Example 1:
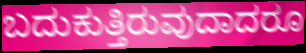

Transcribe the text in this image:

ಬದುಕುತ್ತಿರುವುದಾದರೂ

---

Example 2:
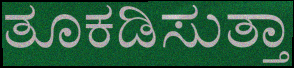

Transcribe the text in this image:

ತೂಕಡಿಸುತ್ತಾ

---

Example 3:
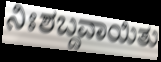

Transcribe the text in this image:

ನಿಃಶಬ್ದವಾಯಿತು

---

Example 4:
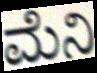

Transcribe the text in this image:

ಮೆನಿ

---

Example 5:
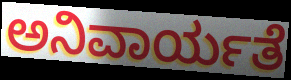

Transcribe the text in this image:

ಅನಿವಾರ್ಯತೆ